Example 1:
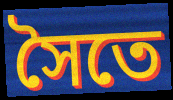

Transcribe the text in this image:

সৈতে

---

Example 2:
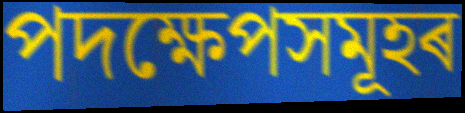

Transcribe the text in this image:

পদক্ষেপসমূহৰ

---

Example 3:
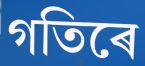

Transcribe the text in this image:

গতিৰে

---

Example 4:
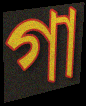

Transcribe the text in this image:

গা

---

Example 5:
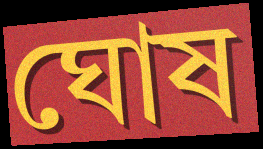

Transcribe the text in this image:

ঘোষ